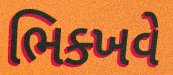
ભિક્ખવે